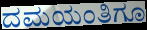
ದಮಯಂತಿಗೂ